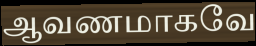
ஆவணமாகவே